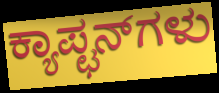
ಕ್ಯಾಪ್ಟನ್‌ಗಳು